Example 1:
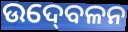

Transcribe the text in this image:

ଉଦ୍‍ବେଳନ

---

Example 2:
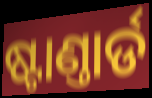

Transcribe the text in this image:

ଷ୍ଟାଣ୍ତାର୍ଡ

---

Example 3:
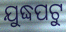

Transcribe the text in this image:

ଯୁଦ୍ଧପଟୁ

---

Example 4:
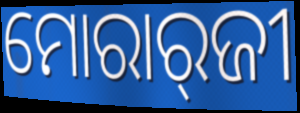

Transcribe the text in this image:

ମୋରାର୍‍ଜୀ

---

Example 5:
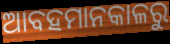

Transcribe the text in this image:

ଆବହମାନକାଳରୁ